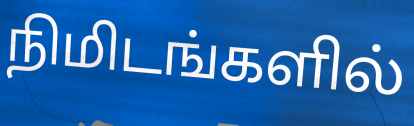
நிமிடங்களில்